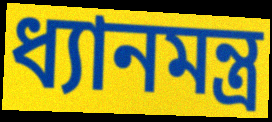
ধ্যানমন্ত্ৰ